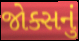
જોક્સનું